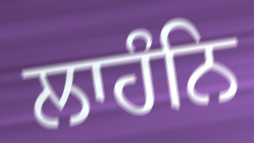
ਲਾਹੰਨਿ